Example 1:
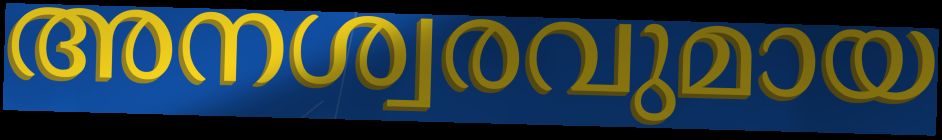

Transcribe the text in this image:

അനശ്വരവുമായ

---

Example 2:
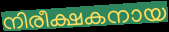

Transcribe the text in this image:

നിരീക്ഷകനായ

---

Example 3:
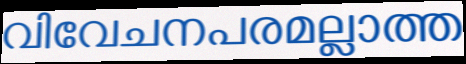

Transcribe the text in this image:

വിവേചനപരമല്ലാത്ത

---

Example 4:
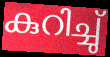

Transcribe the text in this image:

കുറിച്ചു്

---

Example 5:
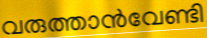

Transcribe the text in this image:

വരുത്താൻവേണ്ടി